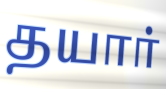
தயார்